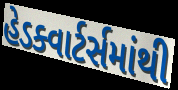
હેડક્વાર્ટર્સમાંથી